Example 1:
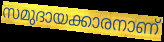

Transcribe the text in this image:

സമുദായക്കാരനാണ്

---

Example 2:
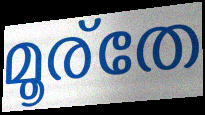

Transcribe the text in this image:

മൂര്തേ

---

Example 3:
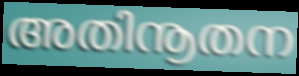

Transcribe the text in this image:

അതിനൂതന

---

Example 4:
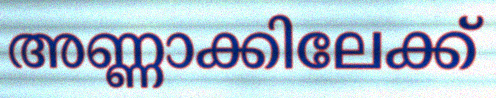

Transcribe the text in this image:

അണ്ണാക്കിലേക്ക്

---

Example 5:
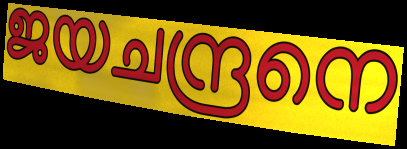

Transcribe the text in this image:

ജയചന്ദ്രനെ